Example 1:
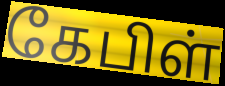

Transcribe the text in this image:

கேபிள்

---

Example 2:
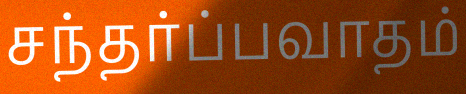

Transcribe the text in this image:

சந்தர்ப்பவாதம்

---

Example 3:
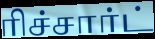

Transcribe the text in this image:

ரிச்சார்ட்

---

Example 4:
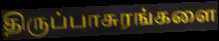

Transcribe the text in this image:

திருப்பாசுரங்களை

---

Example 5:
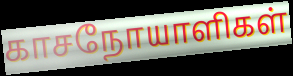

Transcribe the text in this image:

காசநோயாளிகள்